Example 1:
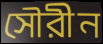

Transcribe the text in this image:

সৌরীন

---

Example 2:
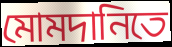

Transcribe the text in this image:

মোমদানিতে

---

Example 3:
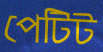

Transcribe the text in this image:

পেটিট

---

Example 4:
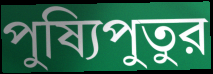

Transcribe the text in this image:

পুষ্যিপুতুর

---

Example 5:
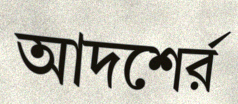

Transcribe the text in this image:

আদশের্র